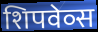
शिपवेव्स